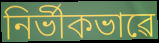
নিৰ্ভীকভাৱে